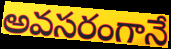
అవసరంగానే